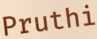
Pruthi